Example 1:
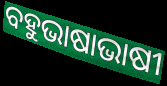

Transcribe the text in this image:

ବହୁଭାଷାଭାଷୀ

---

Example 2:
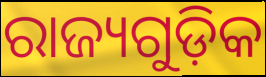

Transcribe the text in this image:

ରାଜ୍ୟଗୁଡ଼ିକ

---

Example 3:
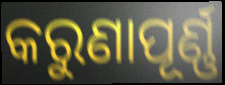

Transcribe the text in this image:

କରୁଣାପୂର୍ଣ୍ଣ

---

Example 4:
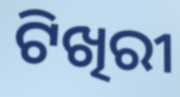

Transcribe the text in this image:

ଟିଖିରୀ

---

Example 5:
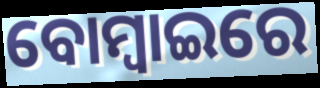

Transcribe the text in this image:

ବୋମ୍ୱାଇରେ